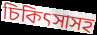
চিকিৎসাসহ